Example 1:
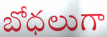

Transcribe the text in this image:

బోధలుగా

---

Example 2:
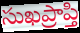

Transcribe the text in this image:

సుఖప్రాప్తి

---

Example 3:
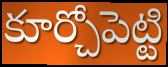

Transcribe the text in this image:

కూర్చోపెట్టి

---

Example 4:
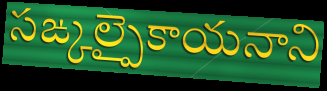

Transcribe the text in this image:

సఙ్కల్పైకాయనాని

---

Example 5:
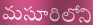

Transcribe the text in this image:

మసూరిలోని